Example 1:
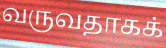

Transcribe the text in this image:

வருவதாகக்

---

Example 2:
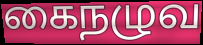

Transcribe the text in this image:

கைநழுவ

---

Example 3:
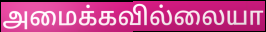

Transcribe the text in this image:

அமைக்கவில்லையா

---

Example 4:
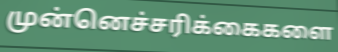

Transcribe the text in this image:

முன்னெச்சரிக்கைகளை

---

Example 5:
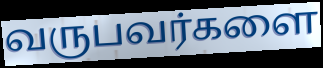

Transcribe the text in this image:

வருபவர்களை